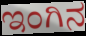
ಇಂಗಿನ